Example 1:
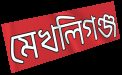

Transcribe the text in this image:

মেখলিগঞ্জ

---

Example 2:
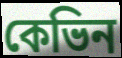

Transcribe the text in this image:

কেভিন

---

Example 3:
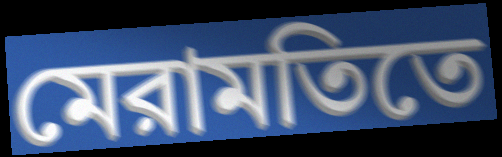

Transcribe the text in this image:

মেরামতিতে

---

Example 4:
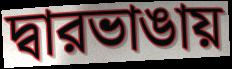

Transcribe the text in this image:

দ্বারভাঙায়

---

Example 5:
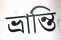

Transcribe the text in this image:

ভ্রান্তি